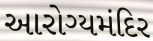
આરોગ્યમંદિર